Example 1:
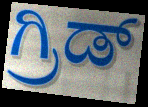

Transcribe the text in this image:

ಗ್ರಿಡ್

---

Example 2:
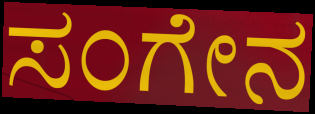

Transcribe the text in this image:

ಸಂಗೇನ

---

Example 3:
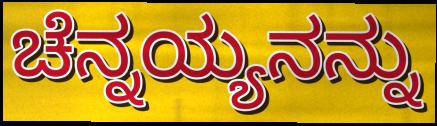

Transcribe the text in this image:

ಚೆನ್ನಯ್ಯನನ್ನು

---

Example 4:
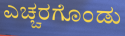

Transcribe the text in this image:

ಎಚ್ಚರಗೊಂಡು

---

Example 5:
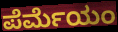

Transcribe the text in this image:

ಪೆರ್ಮೆಯಂ